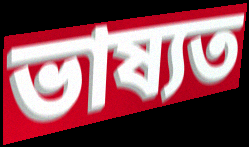
ভাষ্যত